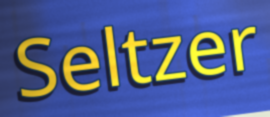
Seltzer